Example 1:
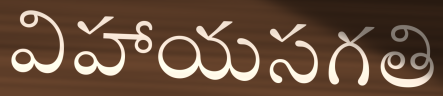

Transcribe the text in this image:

విహాయసగతి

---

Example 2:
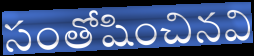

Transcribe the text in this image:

సంతోషించినవి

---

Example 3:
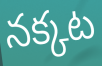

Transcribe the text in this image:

నక్కట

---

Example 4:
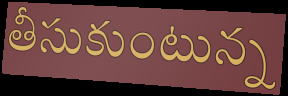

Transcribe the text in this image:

తీసుకుంటున్న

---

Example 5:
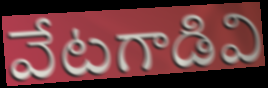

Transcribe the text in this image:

వేటగాడివి